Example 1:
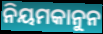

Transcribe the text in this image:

ନିୟମକାନୁନ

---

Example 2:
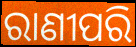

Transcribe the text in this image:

ରାଣୀପରି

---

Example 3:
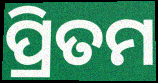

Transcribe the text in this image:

ପ୍ରିତମ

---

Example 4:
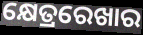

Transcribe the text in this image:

କ୍ଷେତ୍ରରେଖାର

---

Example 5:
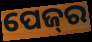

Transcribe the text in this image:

ପେଜ୍‌ର